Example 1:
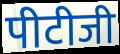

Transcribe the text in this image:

पीटीजी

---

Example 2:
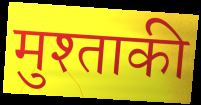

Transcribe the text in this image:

मुश्ताकी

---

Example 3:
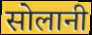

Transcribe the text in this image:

सोलानी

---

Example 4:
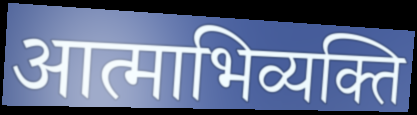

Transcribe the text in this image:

आत्माभिव्यक्ति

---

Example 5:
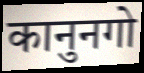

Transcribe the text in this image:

कानुनगो